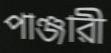
পাঞ্জাৱী